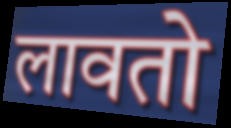
लावतो